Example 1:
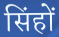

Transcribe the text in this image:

सिंहों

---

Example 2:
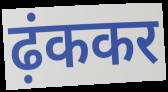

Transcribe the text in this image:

ढ़ंककर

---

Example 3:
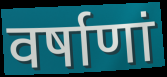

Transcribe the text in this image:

वर्षाणां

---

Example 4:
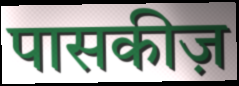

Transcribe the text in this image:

पासकीज़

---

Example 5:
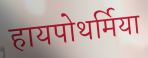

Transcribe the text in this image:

हायपोथर्मिया